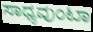
ಸಾಧ್ಯವುಂಟಾ